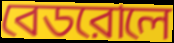
বেডরোলে